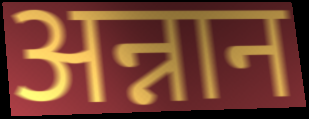
अन्नान